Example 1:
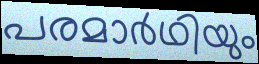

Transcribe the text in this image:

പരമാർഥിയും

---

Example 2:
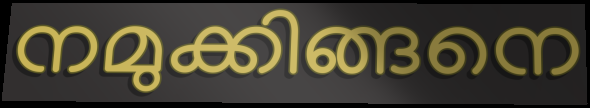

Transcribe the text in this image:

നമുക്കിങ്ങനെ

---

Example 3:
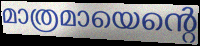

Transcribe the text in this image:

മാത്രമായെന്റെ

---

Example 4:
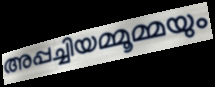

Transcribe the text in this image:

അപ്പച്ചിയമ്മൂമ്മയും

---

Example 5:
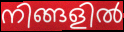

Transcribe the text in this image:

നിങ്ങളിൽ